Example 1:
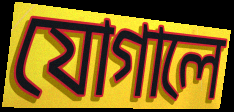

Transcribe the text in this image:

যোগালে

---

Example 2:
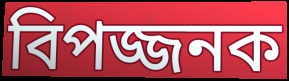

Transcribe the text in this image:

বিপজ্জনক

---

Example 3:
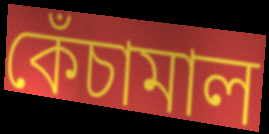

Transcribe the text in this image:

কেঁচামাল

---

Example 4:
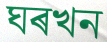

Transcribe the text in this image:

ঘৰখন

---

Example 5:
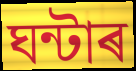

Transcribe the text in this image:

ঘন্টাৰ